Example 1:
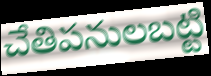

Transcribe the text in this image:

చేతిపనులబట్టి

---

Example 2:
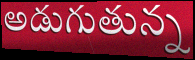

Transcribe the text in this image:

అడుగుతున్న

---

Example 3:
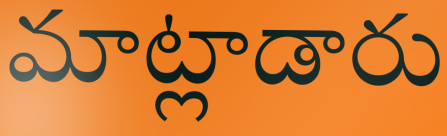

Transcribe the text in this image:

మాట్లాడారు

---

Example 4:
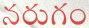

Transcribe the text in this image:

నరుగం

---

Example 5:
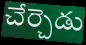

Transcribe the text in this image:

చేర్చెడు